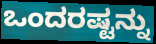
ಒಂದರಷ್ಟನ್ನು